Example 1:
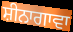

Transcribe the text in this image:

ਸ਼ੀਨਾਗਾਵਾ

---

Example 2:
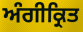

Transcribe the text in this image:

ਅੰਗੀਕ੍ਰਿਤ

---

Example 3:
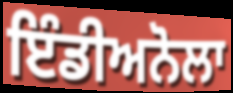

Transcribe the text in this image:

ਇੰਡੀਅਨੋਲਾ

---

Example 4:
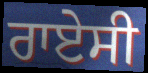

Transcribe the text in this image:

ਰਾਏਸੀ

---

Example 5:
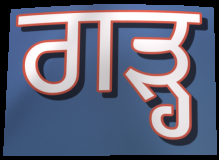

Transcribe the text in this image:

ਗੜ੍ਹ